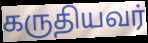
கருதியவர்